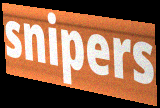
snipers